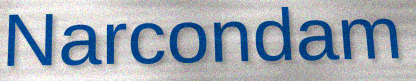
Narcondam